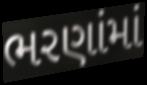
ભરણાંમાં